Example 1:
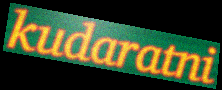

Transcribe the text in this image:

kudaratni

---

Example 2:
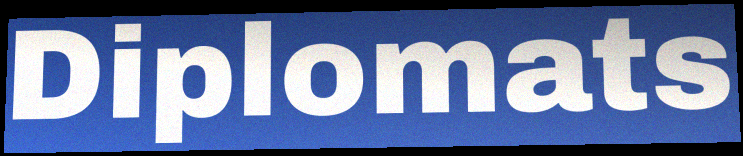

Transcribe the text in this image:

Diplomats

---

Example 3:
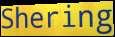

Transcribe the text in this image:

Shering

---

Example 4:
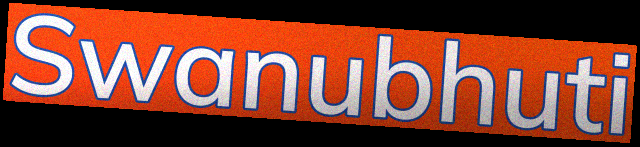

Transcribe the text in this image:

Swanubhuti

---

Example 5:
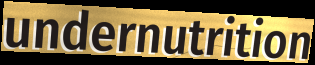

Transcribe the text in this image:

undernutrition